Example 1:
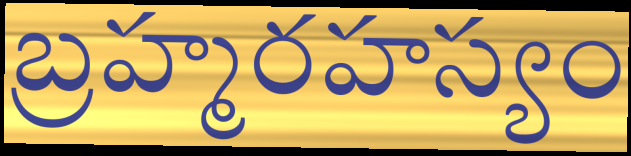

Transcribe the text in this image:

బ్రహ్మరహస్యం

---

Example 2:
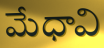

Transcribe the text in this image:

మేధావి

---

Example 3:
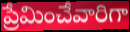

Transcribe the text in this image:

ప్రేమించేవారిగా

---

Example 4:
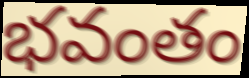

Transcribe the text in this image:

భవంతం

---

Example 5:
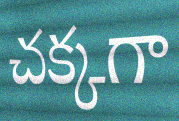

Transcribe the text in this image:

చక్కగా